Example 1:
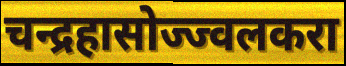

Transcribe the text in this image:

चन्द्रहासोज्ज्वलकरा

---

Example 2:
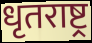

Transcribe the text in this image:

धृतराष्ट्र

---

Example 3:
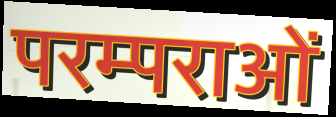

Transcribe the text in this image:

परम्पराओं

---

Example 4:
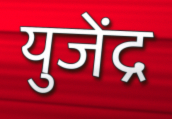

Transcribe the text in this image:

युजेंद्र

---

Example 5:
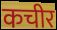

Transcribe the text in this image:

कचीर